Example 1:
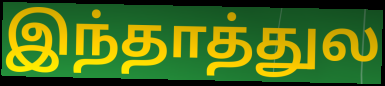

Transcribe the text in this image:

இந்தாத்துல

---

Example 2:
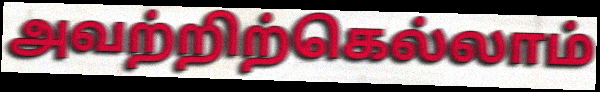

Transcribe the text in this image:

அவற்றிற்கெல்லாம்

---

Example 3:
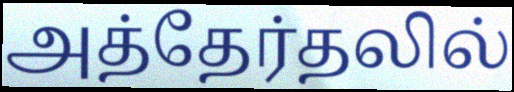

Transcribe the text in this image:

அத்தேர்தலில்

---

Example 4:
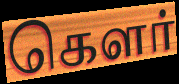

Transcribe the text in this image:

கௌர்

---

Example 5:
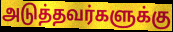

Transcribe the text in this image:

அடுத்தவர்களுக்கு